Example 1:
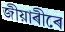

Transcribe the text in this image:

জীয়াৰীৰে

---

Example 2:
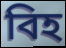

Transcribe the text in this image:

বিহ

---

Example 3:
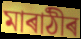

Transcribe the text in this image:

মাৰাঠীৰ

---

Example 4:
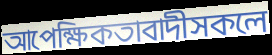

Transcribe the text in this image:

আপেক্ষিকতাবাদীসকলে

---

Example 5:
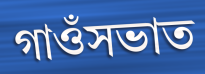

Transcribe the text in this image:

গাওঁসভাত